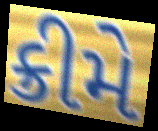
ક્રીમે